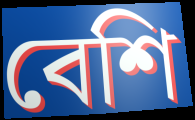
বেশি